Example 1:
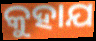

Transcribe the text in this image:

କୁହାଯ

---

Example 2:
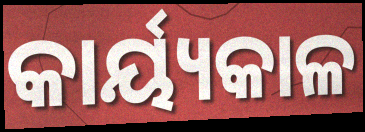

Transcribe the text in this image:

କାର୍ୟ୍ୟକାଳ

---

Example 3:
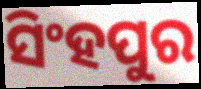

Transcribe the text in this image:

ସିଂହପୁର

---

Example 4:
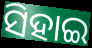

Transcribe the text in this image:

ସିହାଇ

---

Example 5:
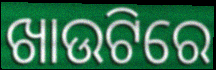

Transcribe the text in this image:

ଖାଉଟିରେ